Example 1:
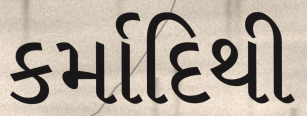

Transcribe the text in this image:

કર્માદિથી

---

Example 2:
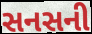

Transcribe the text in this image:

સનસની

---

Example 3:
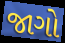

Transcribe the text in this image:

જાગો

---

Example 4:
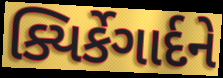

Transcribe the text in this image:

ક્યિર્કેગાર્દને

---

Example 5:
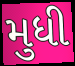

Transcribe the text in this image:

મુધી